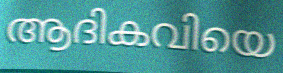
ആദികവിയെ